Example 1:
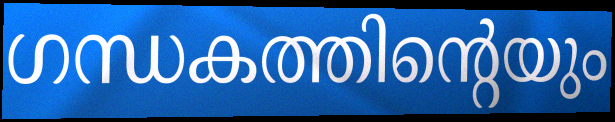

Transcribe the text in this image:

ഗന്ധകത്തിന്റെയും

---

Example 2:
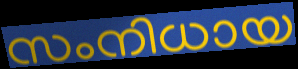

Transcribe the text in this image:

സംനിധായ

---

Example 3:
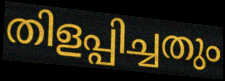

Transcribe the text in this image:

തിളപ്പിച്ചതും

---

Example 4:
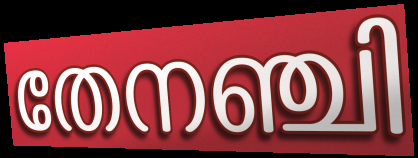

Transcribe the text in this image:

തേനഞ്ചി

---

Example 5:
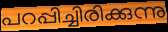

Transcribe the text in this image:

പറപ്പിച്ചിരിക്കുന്നു